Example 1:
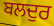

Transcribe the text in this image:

ਬਲਦੁਰ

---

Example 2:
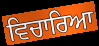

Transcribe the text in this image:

ਵਿਚਾਰਿਆ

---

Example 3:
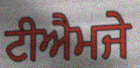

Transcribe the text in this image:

ਟੀਐਮਜੇ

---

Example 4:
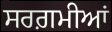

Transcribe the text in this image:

ਸਰਗ਼ਮੀਆਂ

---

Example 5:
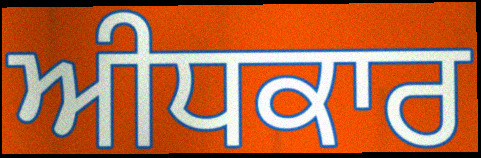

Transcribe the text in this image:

ਅੀਧਕਾਰ